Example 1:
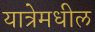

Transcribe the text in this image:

यात्रेमधील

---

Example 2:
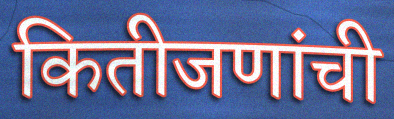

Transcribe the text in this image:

कितीजणांची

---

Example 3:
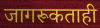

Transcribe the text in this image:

जागरूकताही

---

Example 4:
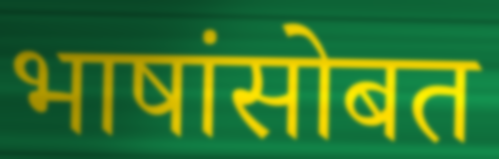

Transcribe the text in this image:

भाषांसोबत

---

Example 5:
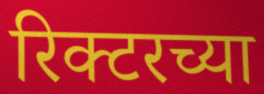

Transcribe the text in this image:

रिक्टरच्या